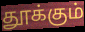
தூக்கும்